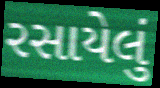
રસાયેલું